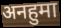
अनहुमा